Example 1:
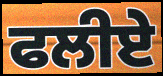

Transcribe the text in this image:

ਫਲੀਏ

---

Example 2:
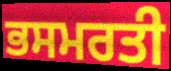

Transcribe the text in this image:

ਭਸਮਰਤੀ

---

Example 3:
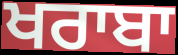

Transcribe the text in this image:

ਖਰਾਬਾ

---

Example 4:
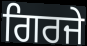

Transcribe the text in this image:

ਗਿਰਜੇ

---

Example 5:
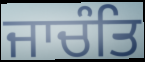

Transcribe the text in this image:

ਜਾਚੰਤਿ